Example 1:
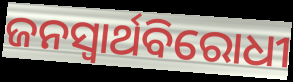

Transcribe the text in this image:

ଜନସ୍ଵାର୍ଥବିରୋଧୀ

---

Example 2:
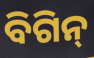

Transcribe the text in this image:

ବିଗିନ୍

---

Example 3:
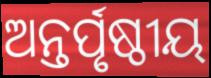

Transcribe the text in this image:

ଅନ୍ତର୍ପୃଷ୍ଠୀୟ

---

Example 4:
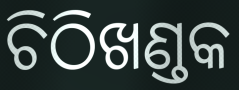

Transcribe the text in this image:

ଚିଠିଖଣ୍ଡକ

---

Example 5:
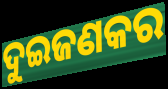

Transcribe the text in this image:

ଦୁଇଜଣକର